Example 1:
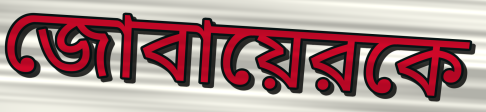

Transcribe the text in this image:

জোবায়েরকে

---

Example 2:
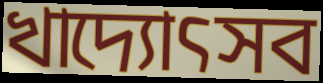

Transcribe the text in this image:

খাদ্যোৎসব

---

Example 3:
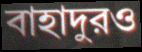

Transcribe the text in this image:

বাহাদুরও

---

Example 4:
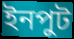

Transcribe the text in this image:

ইনপুট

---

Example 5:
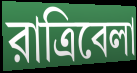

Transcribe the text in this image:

রাত্রিবেলা